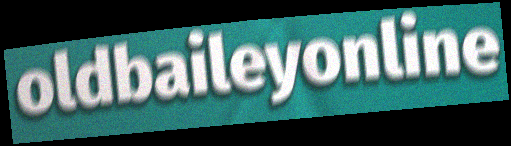
oldbaileyonline